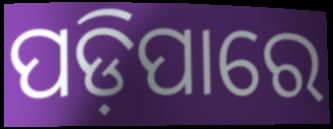
ପଡ଼ିପାରେ